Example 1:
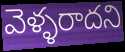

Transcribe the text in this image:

వెళ్ళరాదని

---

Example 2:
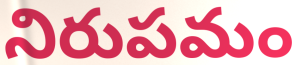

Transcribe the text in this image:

నిరుపమం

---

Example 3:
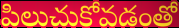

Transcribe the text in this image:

పిలుచుకోవడంతో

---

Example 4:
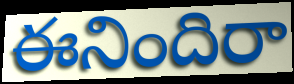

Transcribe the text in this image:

ఈనిందిరా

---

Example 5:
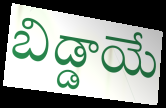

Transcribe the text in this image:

బిడ్డాయే